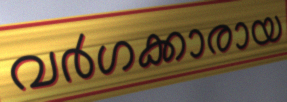
വർഗക്കാരായ